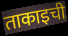
ताकाइची